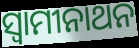
ସ୍ବାମୀନାଥନ